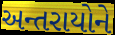
અન્તરાયોને